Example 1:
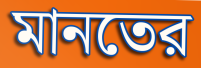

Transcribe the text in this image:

মানতের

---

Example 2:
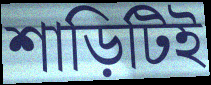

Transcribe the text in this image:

শাড়িটিই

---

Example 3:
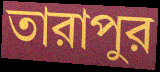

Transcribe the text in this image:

তারাপুর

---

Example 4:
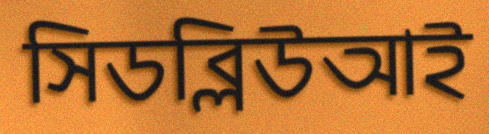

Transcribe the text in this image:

সিডব্লিউআই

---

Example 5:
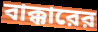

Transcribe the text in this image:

বাক্কারের